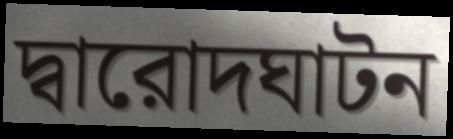
দ্বারোদঘাটন